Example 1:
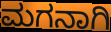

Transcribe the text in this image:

ಮಗನಾಗಿ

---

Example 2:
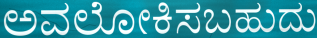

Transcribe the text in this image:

ಅವಲೋಕಿಸಬಹುದು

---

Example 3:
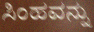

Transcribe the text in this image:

ಸಿಂಹವನ್ನು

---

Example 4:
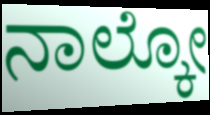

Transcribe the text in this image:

ನಾಲ್ಕೋ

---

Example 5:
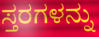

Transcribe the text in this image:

ಸ್ತರಗಳನ್ನು